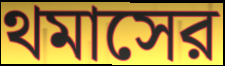
থমাসের